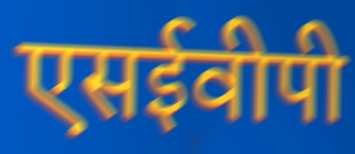
एसईवीपी